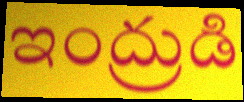
ఇంద్రుడి